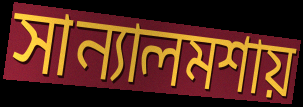
সান্যালমশায়